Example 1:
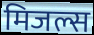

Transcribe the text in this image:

मिजल्स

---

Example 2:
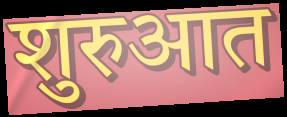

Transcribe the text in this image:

शुरुआत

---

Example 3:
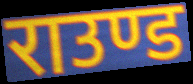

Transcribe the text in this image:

राउण्ड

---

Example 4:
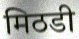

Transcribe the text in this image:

मिठडी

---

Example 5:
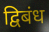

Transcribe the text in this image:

द्विबंध